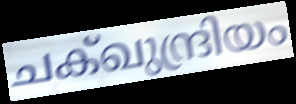
ചക്ഖുന്ദ്രിയം